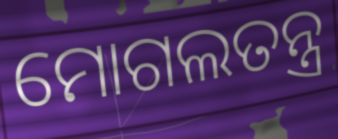
ମୋଗଲତନ୍ତ୍ର